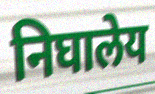
निघालेय